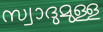
സ്വാദുമുള്ള